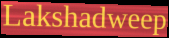
Lakshadweep